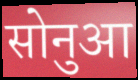
सोनुआ